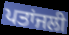
ਪਤਾਂਜਲੀ